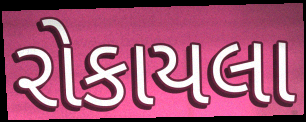
રોકાયલા